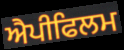
ਐਪੀਫਿਲਮ